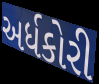
અર્ધકોરી